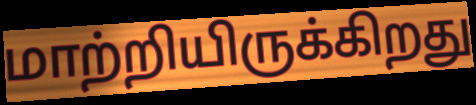
மாற்றியிருக்கிறது